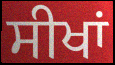
ਸੀਖਾਂ